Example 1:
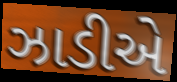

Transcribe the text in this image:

ઝાડીએ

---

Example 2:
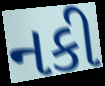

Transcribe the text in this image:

નકી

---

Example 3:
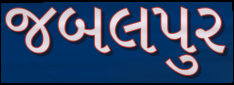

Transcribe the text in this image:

જબલપુર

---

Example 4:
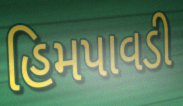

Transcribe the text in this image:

હિમપાવડી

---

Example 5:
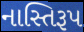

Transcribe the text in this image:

નાસ્તિરૂપ